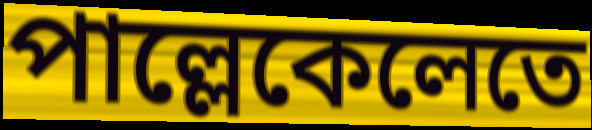
পাল্লেকেলেতে